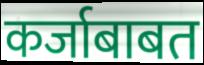
कर्जाबाबत